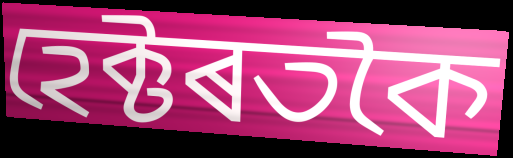
হেক্টৰতকৈ